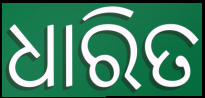
ଧାରିତ